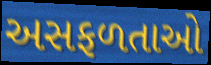
અસફળતાઓ